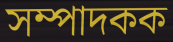
সম্পাদকক